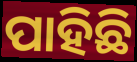
ପାହିଛି